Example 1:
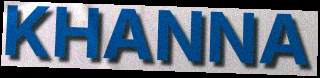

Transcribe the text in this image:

KHANNA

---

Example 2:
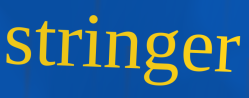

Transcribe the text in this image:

stringer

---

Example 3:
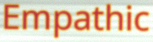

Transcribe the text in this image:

Empathic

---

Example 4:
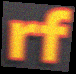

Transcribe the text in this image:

rf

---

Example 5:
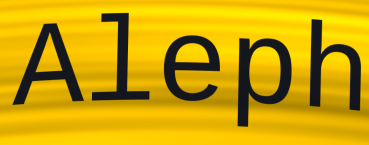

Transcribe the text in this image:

Aleph